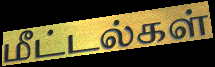
மீட்டல்கள்